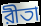
রীতা